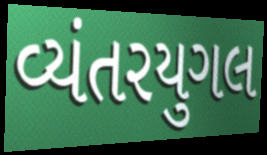
વ્યંતરયુગલ